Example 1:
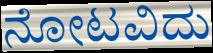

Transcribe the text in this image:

ನೋಟವಿದು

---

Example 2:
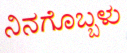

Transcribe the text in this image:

ನಿನಗೊಬ್ಬಳು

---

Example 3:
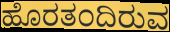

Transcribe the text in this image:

ಹೊರತಂದಿರುವ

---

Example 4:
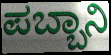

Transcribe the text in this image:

ಪಬ್ಬಾನಿ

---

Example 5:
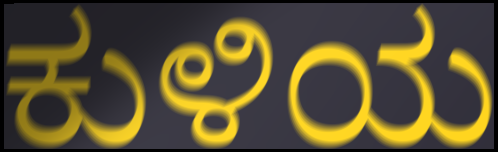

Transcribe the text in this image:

ಕುಳಿಯ